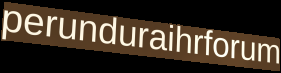
perunduraihrforum